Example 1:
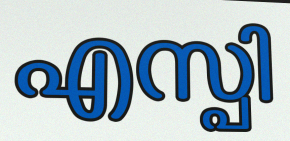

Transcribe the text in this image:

എസ്പി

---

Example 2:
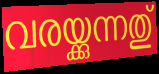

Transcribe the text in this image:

വരയ്ക്കുന്നതു്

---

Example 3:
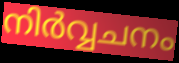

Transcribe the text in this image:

നിർവ്വചനം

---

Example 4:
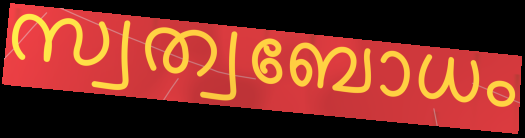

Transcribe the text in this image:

സ്വത്വബോധം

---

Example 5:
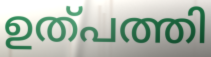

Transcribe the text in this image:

ഉത്പത്തി